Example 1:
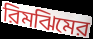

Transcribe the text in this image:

রিমঝিমের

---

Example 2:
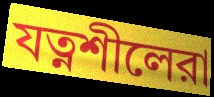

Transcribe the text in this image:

যত্নশীলেরা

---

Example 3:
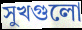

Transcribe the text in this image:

সুখগুলো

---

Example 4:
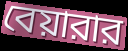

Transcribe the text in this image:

বেয়ারার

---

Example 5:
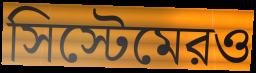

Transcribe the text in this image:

সিস্টেমেরও